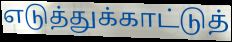
எடுத்துக்காட்டுத்